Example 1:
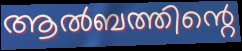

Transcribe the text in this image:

ആൽബത്തിന്റെ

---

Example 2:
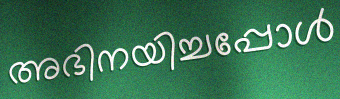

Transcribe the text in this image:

അഭിനയിച്ചപ്പോൾ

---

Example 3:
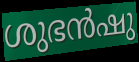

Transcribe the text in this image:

ശുഭൻഷു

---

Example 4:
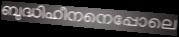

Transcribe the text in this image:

ബുദ്ധിഹീനനെപ്പോലെ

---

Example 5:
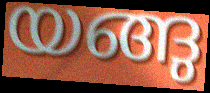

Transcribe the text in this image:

യങ്ങു